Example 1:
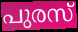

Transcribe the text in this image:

പുരസ്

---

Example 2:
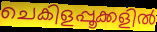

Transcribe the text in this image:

ചെകിളപ്പൂക്കളിൽ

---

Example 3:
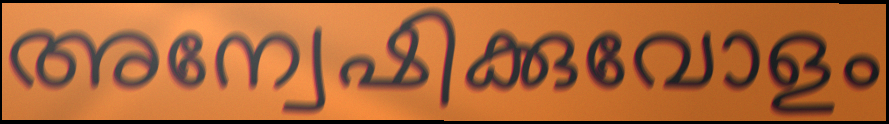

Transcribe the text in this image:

അന്വേഷിക്കുവോളം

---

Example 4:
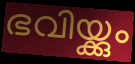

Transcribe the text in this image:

ഭവിയ്ക്കും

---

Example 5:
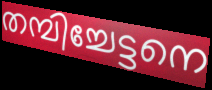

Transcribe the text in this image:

തമ്പിച്ചേട്ടനെ